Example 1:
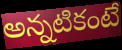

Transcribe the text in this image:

అన్నటికంటే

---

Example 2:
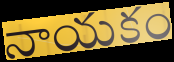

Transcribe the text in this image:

నాయకం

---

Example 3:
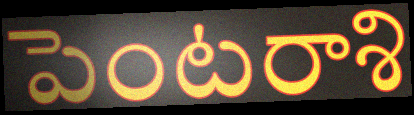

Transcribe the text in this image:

పెంటరాశి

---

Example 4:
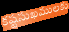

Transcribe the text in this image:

కష్టసుఖములకు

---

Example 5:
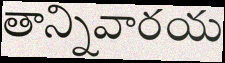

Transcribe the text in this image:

తాన్నివారయ